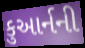
કુઆર્નની